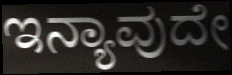
ಇನ್ಯಾವುದೇ